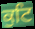
ਕੁਟਿ